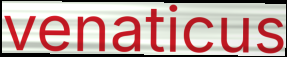
venaticus